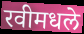
रवीमधले